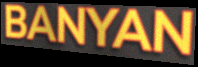
BANYAN